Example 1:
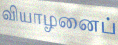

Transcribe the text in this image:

வியாழனைப்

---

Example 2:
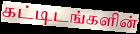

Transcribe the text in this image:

கட்டிடங்களின்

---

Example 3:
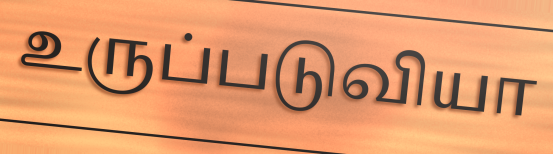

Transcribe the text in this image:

உருப்படுவியா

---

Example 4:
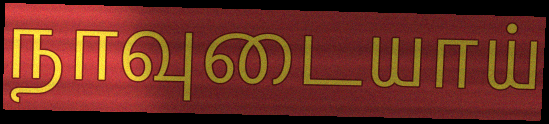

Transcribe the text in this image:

நாவுடையாய்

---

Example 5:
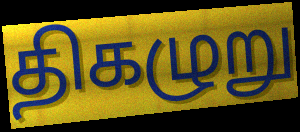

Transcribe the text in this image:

திகழுறு